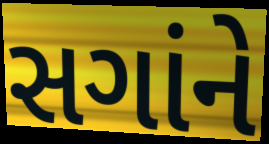
સગાંને